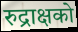
रुद्राक्षको